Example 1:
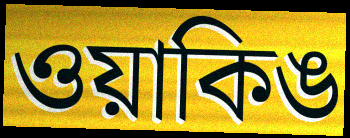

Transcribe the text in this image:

ওয়াকিঙ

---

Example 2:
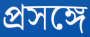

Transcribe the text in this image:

প্রসঙ্গে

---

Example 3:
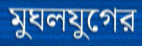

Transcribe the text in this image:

মুঘলযুগের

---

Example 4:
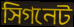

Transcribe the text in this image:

সিগনেট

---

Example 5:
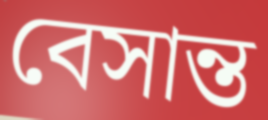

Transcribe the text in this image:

বেসান্ত